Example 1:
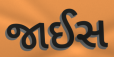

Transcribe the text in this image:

જાઈસ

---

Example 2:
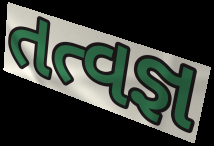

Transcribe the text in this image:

તત્વજ્ઞ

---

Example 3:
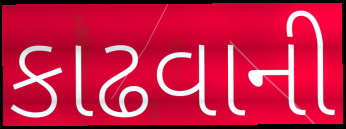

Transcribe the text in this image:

કાઢવાની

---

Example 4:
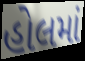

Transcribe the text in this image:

હોલમાં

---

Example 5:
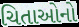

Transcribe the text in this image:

ચિતાઓનો